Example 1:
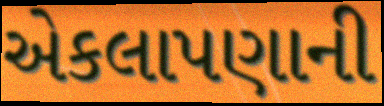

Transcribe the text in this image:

એકલાપણાની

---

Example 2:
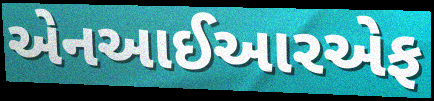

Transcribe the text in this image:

એનઆઈઆરએફ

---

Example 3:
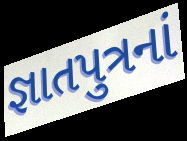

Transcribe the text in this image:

જ્ઞાતપુત્રનાં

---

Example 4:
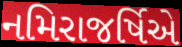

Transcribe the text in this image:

નમિરાજર્ષિએ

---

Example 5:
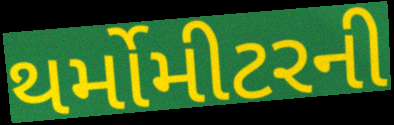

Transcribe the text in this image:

થર્મોમીટરની